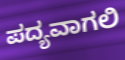
ಪದ್ಯವಾಗಲಿ